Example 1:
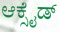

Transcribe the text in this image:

ಆಕ್ಸೈಡ್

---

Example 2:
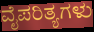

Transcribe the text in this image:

ವೈಪರಿತ್ಯಗಳು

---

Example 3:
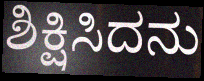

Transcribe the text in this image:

ಶಿಕ್ಷಿಸಿದನು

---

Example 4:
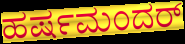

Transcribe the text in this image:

ಹರ್ಷಮಂದರ್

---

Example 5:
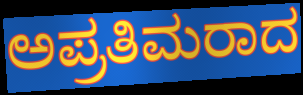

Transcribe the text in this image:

ಅಪ್ರತಿಮರಾದ